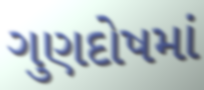
ગુણદોષમાં